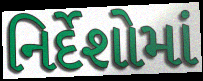
નિર્દેશોમાં